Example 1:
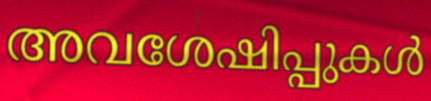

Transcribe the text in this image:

അവശേഷിപ്പുകൾ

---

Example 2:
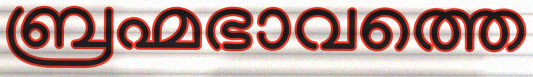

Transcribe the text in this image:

ബ്രഹ്മഭാവത്തെ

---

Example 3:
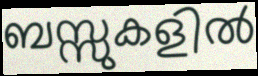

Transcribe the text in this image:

ബസ്സുകളിൽ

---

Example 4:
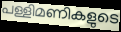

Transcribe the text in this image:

പള്ളിമണികളുടെ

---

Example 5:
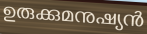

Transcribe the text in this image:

ഉരുക്കുമനുഷ്യൻ